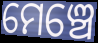
ମେଞ୍ଚେ